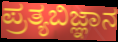
ಪ್ರತ್ಯಬಿಜ್ಞಾನ